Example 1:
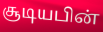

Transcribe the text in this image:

சூடியபின்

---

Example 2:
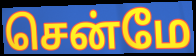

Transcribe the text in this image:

சென்மே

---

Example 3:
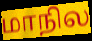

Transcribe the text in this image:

மாநில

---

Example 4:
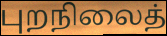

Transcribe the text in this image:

புறநிலைத்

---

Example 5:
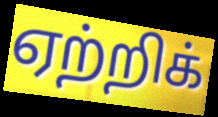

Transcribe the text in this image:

ஏற்றிக்